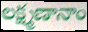
లక్ష్మణానాం